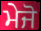
ਮੇਜੋ